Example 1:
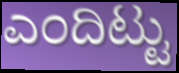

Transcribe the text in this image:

ಎಂದಿಟ್ಟು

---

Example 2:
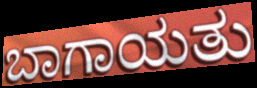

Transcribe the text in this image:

ಬಾಗಾಯತು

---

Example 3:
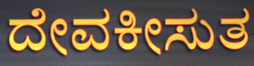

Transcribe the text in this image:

ದೇವಕೀಸುತ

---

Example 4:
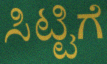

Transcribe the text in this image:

ಸಿಟ್ಟಿಗೆ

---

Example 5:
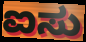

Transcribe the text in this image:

ಐಸು